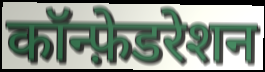
कॉन्फ़ेडरेशन